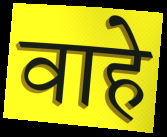
वाहे